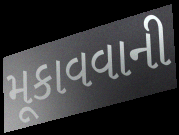
મૂકાવવાની